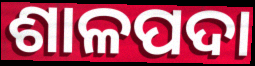
ଶାଳପଦା